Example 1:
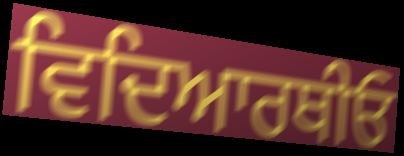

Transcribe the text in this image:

ਵਿਦਿਆਰਥੀਓ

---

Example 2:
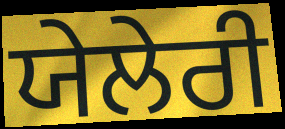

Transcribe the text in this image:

ਯੇਲੇਰੀ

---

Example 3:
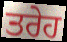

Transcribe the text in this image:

ਤਰੇਹ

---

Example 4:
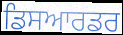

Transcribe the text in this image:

ਡਿਸਆਰਡਰ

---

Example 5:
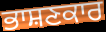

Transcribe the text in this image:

ਭਾਸ਼ਣਕਾਰ